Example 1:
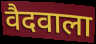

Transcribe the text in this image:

वैदवाला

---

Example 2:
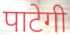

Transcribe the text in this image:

पाटेगी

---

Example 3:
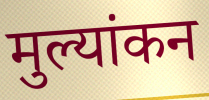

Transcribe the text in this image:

मुल्यांकन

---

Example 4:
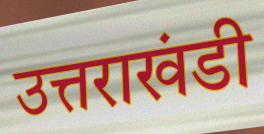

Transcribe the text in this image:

उत्तराखंडी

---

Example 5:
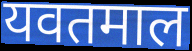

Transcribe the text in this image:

यवतमाल